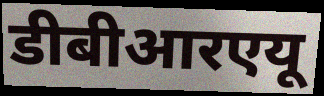
डीबीआरएयू